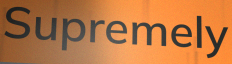
Supremely